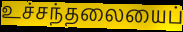
உச்சந்தலையைப்